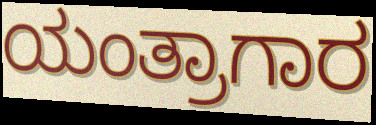
ಯಂತ್ರಾಗಾರ